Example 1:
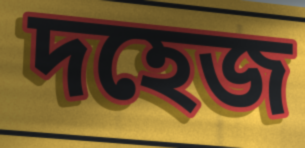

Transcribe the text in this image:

দহেজ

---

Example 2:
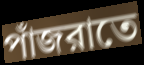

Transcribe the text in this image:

পাঁজরাতে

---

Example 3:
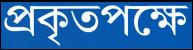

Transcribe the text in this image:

প্রকৃতপক্ষে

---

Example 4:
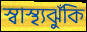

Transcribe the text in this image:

স্বাস্থ্যঝুঁকি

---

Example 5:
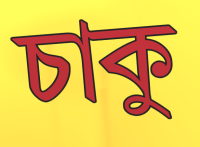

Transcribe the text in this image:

চাকু